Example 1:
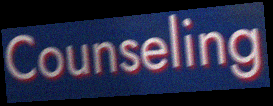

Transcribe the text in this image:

Counseling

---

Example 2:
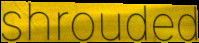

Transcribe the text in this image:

shrouded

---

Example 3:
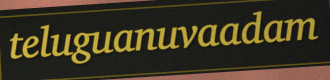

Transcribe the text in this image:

teluguanuvaadam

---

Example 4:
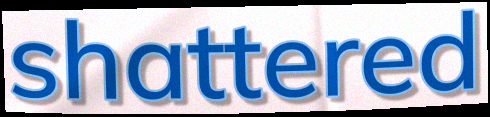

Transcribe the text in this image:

shattered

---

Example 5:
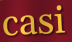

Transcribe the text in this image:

casi